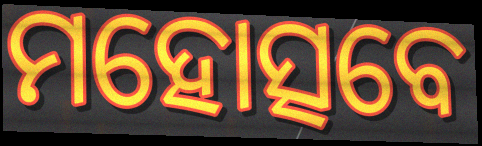
ମହୋତ୍ସବେ